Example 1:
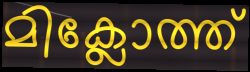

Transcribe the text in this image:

മിക്ലോത്ത്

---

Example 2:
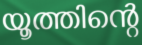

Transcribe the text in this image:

യൂത്തിന്റെ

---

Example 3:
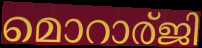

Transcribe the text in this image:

മൊറാര്ജി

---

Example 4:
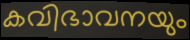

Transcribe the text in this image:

കവിഭാവനയും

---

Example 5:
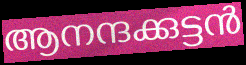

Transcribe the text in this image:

ആനന്ദക്കുട്ടൻ